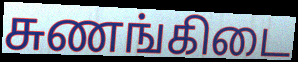
சுணங்கிடை